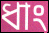
ধাং